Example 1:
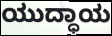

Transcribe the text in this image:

ಯುದ್ಧಾಯ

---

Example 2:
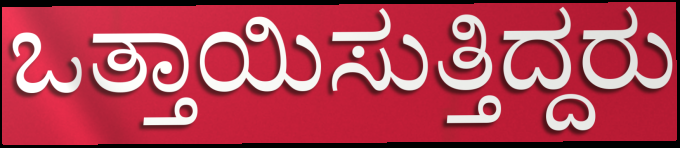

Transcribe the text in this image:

ಒತ್ತಾಯಿಸುತ್ತಿದ್ದರು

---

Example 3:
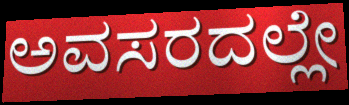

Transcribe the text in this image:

ಅವಸರದಲ್ಲೇ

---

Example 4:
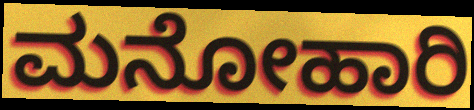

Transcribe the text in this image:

ಮನೋಹಾರಿ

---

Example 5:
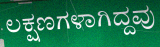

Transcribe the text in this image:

ಲಕ್ಷಣಗಳಾಗಿದ್ದವು